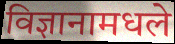
विज्ञानामधले